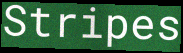
Stripes